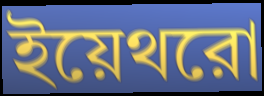
ইয়েথরো